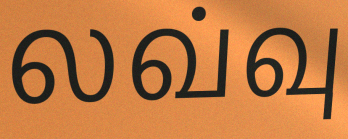
லவ்வு